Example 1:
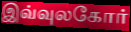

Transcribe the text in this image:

இவ்வுலகோர்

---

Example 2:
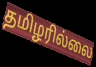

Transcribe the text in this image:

தமிழரில்லை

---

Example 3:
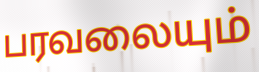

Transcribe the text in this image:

பரவலையும்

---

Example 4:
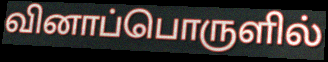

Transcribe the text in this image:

வினாப்பொருளில்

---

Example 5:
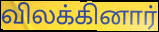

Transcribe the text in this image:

விலக்கினார்